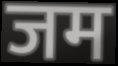
जम